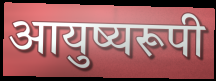
आयुष्यरूपी